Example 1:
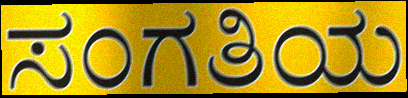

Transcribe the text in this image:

ಸಂಗತಿಯ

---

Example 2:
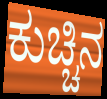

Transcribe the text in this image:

ಕುಚ್ಚಿನ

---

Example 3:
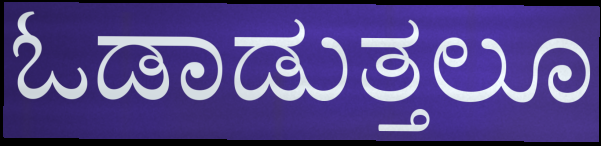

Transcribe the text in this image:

ಓಡಾಡುತ್ತಲೂ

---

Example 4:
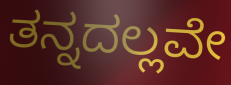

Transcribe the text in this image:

ತನ್ನದಲ್ಲವೇ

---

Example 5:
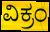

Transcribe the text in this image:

ವಿಕ್ರಂ